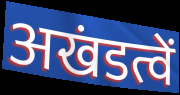
अखंडत्वें